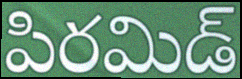
పిరమిడ్